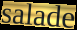
salade